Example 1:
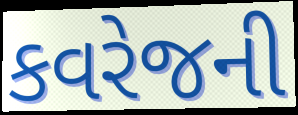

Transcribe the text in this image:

કવરેજની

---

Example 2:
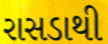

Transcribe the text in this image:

રાસડાથી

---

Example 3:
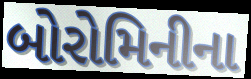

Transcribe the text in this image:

બોરોમિનીના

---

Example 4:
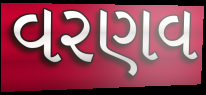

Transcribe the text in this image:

વરણવ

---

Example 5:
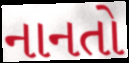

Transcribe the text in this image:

નાનતો